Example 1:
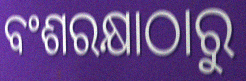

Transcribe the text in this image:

ବଂଶରକ୍ଷାଠାରୁ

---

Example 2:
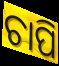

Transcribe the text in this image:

ଚାପି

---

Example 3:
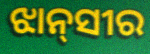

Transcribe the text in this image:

ଝାନ୍‌ସୀର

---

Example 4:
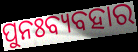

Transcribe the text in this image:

ପୁନଃବ୍ୟବହାର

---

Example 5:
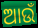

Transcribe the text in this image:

ଆଉଁ